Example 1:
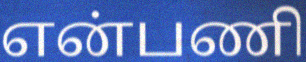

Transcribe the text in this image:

என்பணி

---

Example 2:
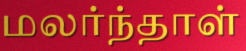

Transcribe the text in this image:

மலர்ந்தாள்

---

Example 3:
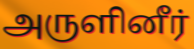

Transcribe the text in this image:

அருளினீர்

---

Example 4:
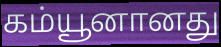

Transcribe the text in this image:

கம்யூனானது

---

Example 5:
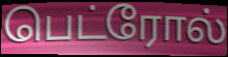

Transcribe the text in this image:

பெட்ரோல்